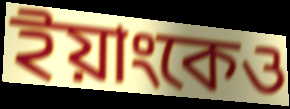
ইয়াংকেও